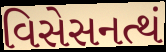
વિસેસનત્થં